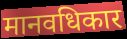
मानवधिकार